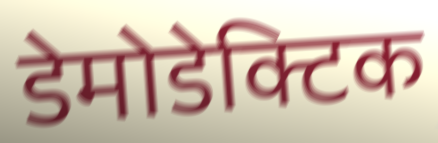
डेमोडेक्टिक